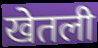
खेतली